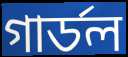
গার্ডল